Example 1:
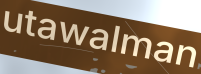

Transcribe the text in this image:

utawalman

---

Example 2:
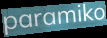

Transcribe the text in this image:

paramiko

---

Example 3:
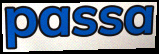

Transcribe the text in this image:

passa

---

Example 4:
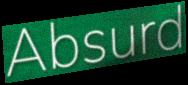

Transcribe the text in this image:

Absurd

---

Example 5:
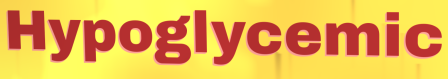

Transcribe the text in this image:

Hypoglycemic